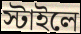
স্টাইলে